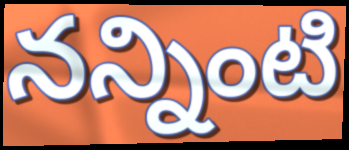
నన్నింటి